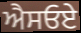
ਐਸਓਏ